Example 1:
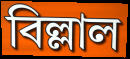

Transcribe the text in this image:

বিল্লাল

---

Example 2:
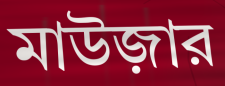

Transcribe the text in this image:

মাউজ়ার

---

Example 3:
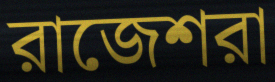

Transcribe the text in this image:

রাজেশরা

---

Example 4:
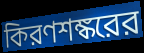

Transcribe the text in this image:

কিরণশঙ্করের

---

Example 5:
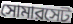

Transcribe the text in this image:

সোমারসেট